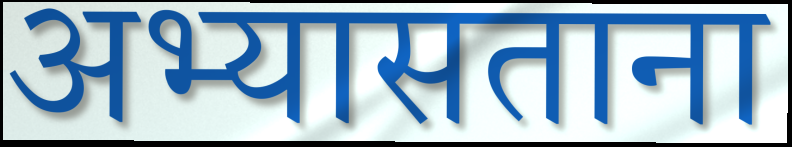
अभ्यासताना